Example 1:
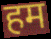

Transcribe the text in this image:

हम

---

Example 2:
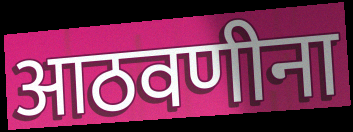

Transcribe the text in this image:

आठवणीना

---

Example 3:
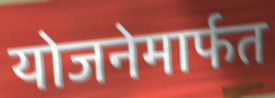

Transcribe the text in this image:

योजनेमार्फत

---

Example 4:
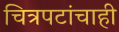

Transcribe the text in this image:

चित्रपटांचाही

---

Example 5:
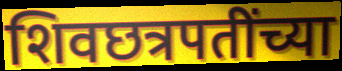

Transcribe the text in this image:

शिवछत्रपतींच्या